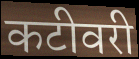
कटीवरी